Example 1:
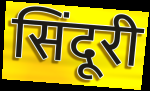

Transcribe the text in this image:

सिंदूरी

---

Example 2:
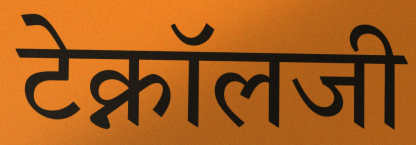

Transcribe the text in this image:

टेक्नॉलजी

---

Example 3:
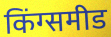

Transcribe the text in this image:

किंग्समीड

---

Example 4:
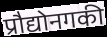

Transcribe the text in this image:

प्रौद्योनगकी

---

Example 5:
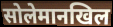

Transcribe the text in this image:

सोलेमानखिल